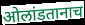
ओलांडतानाच